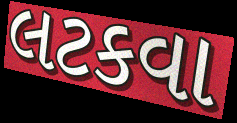
લટકવા